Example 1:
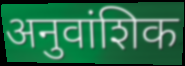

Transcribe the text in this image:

अनुवांशिक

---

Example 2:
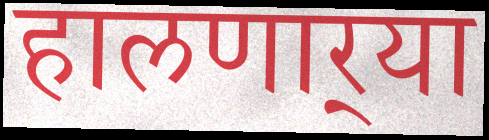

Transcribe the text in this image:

हालणार्या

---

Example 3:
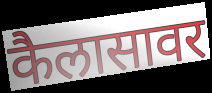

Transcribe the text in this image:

कैलासावर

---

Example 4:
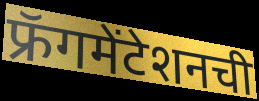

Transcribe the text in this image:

फ्रॅगमेंटेशनची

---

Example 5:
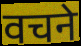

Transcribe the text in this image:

वचने